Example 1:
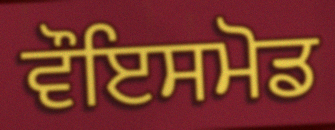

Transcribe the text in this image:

ਵੌਇਸਮੋਡ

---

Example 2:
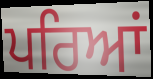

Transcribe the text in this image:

ਪਰਿਆਂ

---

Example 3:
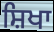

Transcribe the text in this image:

ਸ਼ਿਖਾ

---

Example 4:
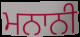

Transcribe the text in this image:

ਮਨਾਨੀ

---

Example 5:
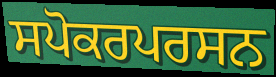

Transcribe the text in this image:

ਸਪੋਕਰਪਰਸਨ